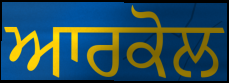
ਆਰਕੋਲ